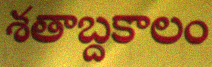
శతాబ్దకాలం